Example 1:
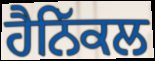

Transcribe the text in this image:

ਹੈਨਿੱਕਲ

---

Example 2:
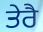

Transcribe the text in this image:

ਤੇਰੈ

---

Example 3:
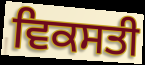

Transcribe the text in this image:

ਵਿਕਸਤੀ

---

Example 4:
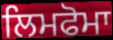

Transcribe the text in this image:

ਲਿਮਫੋਮਾ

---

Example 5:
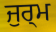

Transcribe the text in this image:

ਜੁਰ੍ਮ